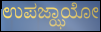
ಉಪಜ್ಝಾಯೋ